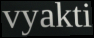
vyakti